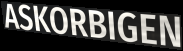
ASKORBIGEN